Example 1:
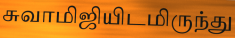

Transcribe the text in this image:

சுவாமிஜியிடமிருந்து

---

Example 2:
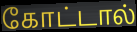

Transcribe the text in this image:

கோட்டால்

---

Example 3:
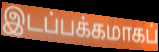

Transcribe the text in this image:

இடப்பக்கமாகப்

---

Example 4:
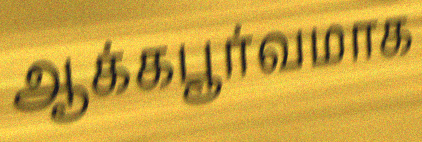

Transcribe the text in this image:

ஆக்கபூர்வமாக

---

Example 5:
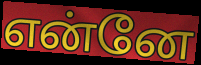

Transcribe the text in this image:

என்னே